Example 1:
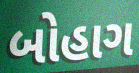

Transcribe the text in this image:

બોહાગ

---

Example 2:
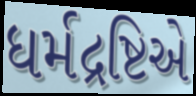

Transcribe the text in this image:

ધર્મદ્રષ્ટિએ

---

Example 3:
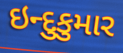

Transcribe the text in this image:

ઇન્દુકુમાર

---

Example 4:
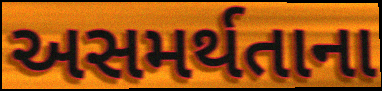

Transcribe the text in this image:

અસમર્થતાના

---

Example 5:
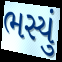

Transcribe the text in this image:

ભસ્યું